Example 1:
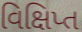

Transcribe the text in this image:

વિક્ષિપ્ત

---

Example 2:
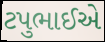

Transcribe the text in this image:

ટપુભાઈએ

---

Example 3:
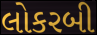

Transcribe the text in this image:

લોકરબી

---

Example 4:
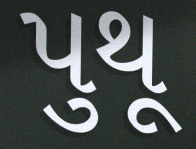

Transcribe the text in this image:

પુથૂ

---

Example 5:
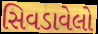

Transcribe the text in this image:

સિવડાવેલો